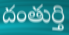
దంతుర్తి